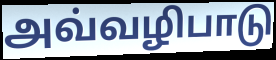
அவ்வழிபாடு